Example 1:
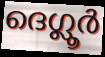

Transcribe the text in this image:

ദെഗ്ലൂർ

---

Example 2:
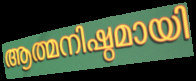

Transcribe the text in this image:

ആത്മനിഷ്ഠമായി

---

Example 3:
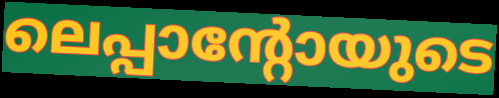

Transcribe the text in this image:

ലെപ്പാന്റോയുടെ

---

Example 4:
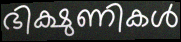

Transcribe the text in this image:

ഭിക്ഷുണികൾ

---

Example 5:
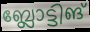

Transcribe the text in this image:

ബ്ലോട്ടിങ്